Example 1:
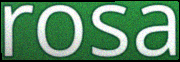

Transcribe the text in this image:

rosa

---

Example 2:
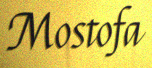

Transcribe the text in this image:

Mostofa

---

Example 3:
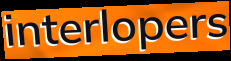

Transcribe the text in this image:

interlopers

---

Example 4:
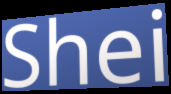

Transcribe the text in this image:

Shei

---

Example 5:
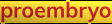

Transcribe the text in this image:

proembryo